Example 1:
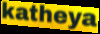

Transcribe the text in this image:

katheya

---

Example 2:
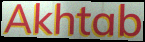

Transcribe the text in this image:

Akhtab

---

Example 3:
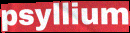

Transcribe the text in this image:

psyllium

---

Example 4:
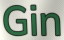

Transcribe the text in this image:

Gin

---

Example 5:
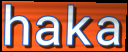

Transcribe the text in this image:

haka